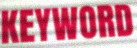
KEYWORD